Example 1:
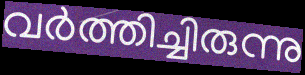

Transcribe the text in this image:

വർത്തിച്ചിരുന്നു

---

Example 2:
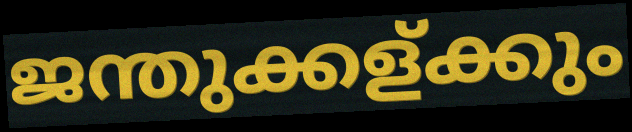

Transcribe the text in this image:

ജന്തുക്കള്ക്കും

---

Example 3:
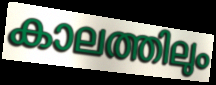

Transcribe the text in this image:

കാലത്തിലും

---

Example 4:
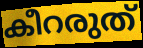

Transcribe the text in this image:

കീറരുത്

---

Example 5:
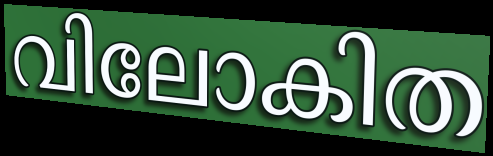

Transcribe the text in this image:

വിലോകിത